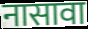
नासावा